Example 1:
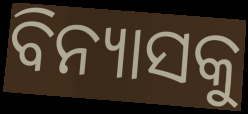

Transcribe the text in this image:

ବିନ୍ୟାସକୁ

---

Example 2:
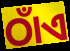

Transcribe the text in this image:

ଠାଁଏ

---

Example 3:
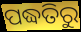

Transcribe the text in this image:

ପଦ୍ଧତିରୁ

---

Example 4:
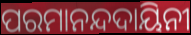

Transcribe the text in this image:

ପରମାନନ୍ଦଦାୟିନୀ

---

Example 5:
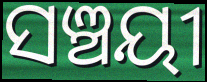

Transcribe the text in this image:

ସଞ୍ଚୟୀ